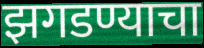
झगडण्याचा